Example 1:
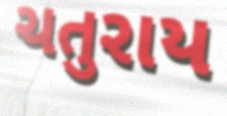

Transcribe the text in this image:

ચતુરાય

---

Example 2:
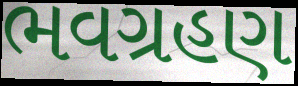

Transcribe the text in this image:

ભવગ્રહણ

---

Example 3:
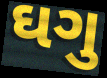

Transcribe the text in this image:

ઘગુ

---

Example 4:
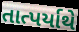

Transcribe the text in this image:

તાત્પર્યાથે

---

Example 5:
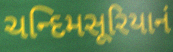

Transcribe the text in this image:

ચન્દિમસૂરિયાનં